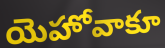
యెహోవాకూ